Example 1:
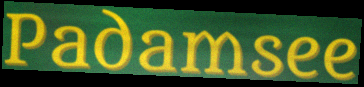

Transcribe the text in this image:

Padamsee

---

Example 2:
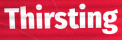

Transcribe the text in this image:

Thirsting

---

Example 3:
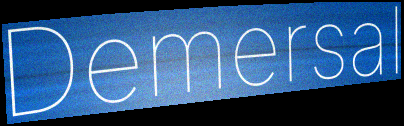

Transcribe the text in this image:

Demersal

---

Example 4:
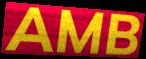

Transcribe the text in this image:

AMB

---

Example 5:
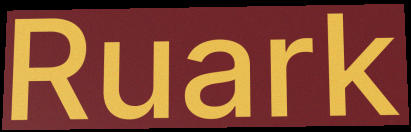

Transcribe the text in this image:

Ruark